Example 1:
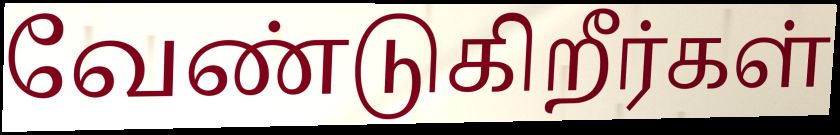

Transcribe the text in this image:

வேண்டுகிறீர்கள்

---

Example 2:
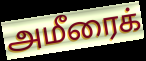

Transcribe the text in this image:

அமீரைக்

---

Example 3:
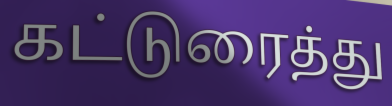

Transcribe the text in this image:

கட்டுரைத்து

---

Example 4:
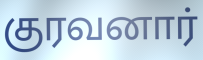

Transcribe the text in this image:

குரவனார்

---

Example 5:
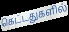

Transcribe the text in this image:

கெட்டதுகளில்